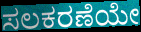
ಸಲಕರಣೆಯೇ